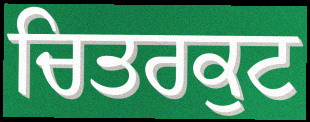
ਚਿਤਰਕੁਟ